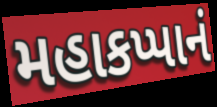
મહાકપ્પાનં